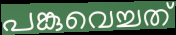
പങ്കുവെച്ചത്